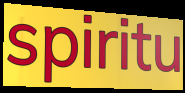
spiritu